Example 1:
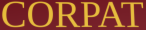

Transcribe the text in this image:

CORPAT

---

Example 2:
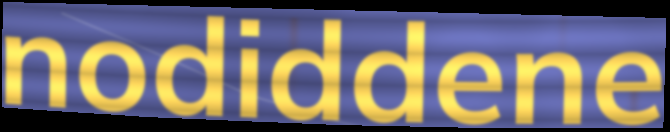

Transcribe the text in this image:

nodiddene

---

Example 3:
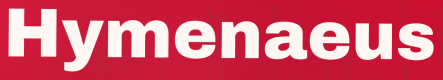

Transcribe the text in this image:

Hymenaeus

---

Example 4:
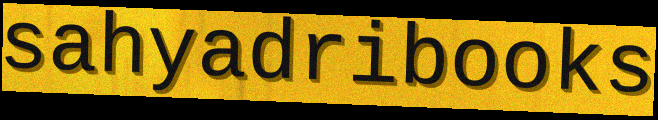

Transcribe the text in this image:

sahyadribooks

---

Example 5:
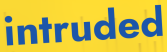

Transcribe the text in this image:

intruded